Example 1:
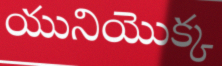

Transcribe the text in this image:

యునియొక్క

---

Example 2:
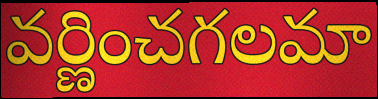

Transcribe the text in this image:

వర్ణించగలమా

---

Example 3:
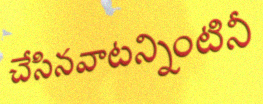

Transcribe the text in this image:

చేసినవాటన్నింటినీ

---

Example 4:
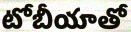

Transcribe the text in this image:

టోబీయాతో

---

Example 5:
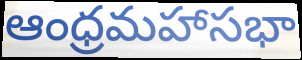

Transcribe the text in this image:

ఆంధ్రమహాసభా